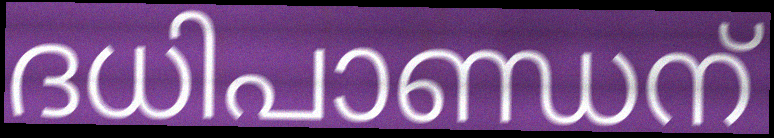
ദധിപാണ്ഡന്